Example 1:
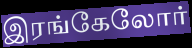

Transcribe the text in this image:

இரங்கேலோர்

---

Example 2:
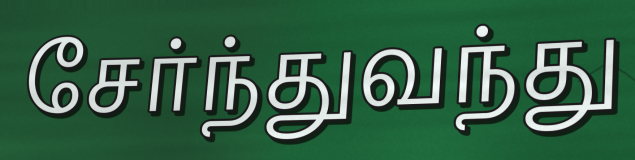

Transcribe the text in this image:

சேர்ந்துவந்து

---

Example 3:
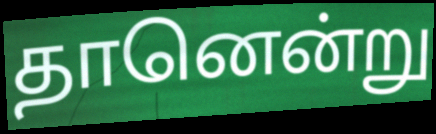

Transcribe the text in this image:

தானென்று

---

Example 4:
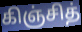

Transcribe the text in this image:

கிஞ்சித்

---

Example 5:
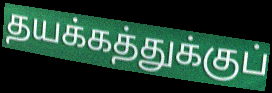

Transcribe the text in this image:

தயக்கத்துக்குப்